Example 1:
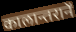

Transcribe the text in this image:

कालान्तरानें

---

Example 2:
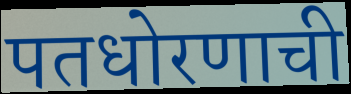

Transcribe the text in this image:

पतधोरणाची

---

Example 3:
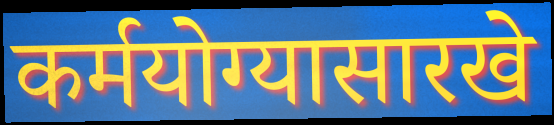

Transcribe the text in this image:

कर्मयोग्यासारखे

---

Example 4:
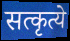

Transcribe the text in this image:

सत्कृत्ये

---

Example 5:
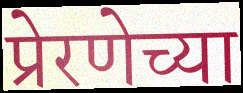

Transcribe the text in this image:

प्रेरणेच्या